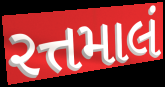
રત્તમાલં